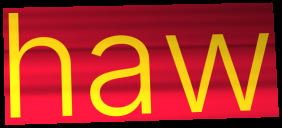
haw